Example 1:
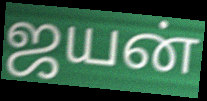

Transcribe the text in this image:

ஜயன்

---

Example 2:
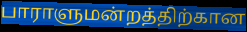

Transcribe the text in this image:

பாராளுமன்றத்திற்கான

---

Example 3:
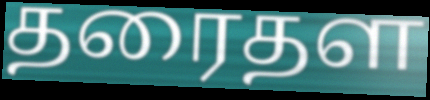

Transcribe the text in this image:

தரைதள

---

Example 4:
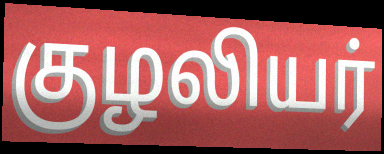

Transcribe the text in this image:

குழலியர்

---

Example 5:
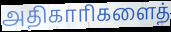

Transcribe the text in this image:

அதிகாரிகளைத்